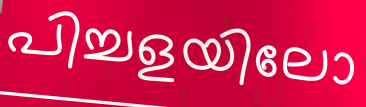
പിച്ചളയിലോ